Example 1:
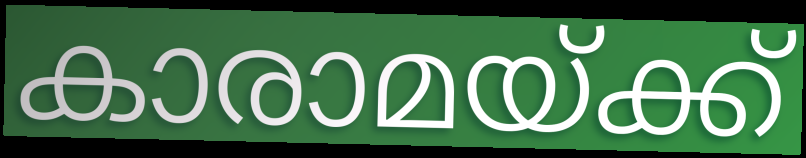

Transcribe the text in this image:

കാരാമയ്ക്ക്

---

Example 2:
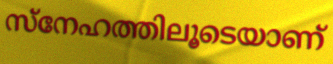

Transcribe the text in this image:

സ്നേഹത്തിലൂടെയാണ്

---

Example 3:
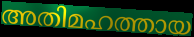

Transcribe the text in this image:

അതിമഹത്തായ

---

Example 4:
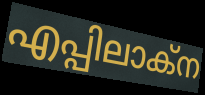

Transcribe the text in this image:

എപ്പിലാക്ന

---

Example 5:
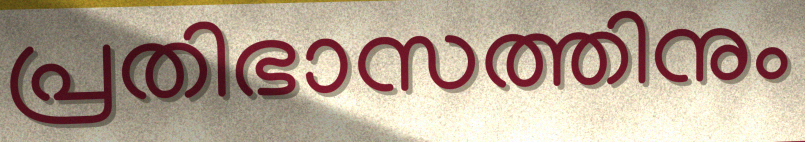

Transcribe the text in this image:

പ്രതിഭാസത്തിനും